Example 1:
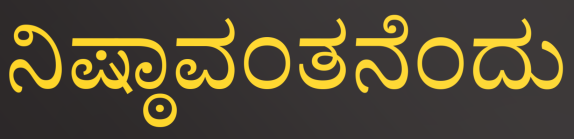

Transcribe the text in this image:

ನಿಷ್ಠಾವಂತನೆಂದು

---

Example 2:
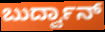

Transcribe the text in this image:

ಬುರ್ದ್ವಾನ್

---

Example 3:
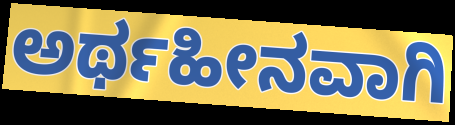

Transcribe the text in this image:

ಅರ್ಥಹೀನವಾಗಿ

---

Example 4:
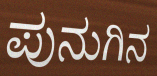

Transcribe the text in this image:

ಪುನುಗಿನ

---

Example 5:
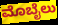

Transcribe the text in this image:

ಮೊಬೈಲು